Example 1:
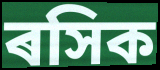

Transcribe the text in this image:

ৰসিক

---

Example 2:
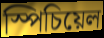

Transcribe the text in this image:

স্পিচিয়েল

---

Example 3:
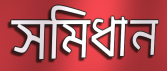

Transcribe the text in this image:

সমিধান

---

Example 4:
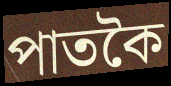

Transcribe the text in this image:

পাতকৈ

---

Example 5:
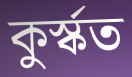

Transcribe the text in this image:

কুৰ্স্কত